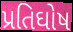
પ્રતિઘોષ